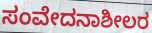
ಸಂವೇದನಾಶೀಲರ